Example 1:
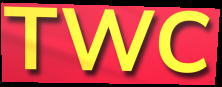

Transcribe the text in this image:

TWC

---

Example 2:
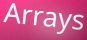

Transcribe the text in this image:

Arrays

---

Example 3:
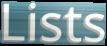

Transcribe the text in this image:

Lists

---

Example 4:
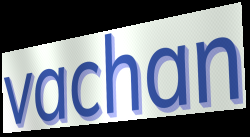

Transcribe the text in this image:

vachan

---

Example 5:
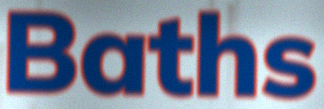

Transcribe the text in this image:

Baths